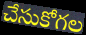
చేసుకోగల